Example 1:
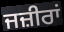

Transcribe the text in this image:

ਜਜ਼ੀਰਾਂ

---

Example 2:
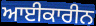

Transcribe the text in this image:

ਆਈਕਾਰੀਨ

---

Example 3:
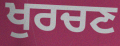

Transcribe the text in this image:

ਖੁਰਚਣ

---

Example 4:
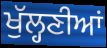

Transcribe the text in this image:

ਖੁੱਲ੍ਹਣੀਆਂ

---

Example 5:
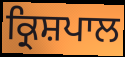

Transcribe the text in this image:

ਕ੍ਰਿਸ਼ਪਾਲ